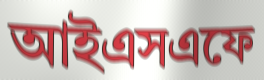
আইএসএফে